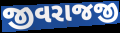
જીવરાજજી